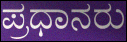
ಪ್ರಧಾನರು